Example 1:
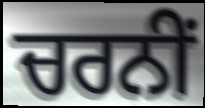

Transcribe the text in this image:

ਚਰਨੀਂ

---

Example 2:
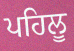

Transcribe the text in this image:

ਪਹਿਲੂ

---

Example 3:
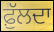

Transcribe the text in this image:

ਫ਼ੁੱਲਦਾ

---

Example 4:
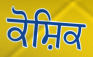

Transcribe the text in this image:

ਕੋਸ਼ਿਕ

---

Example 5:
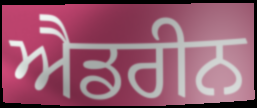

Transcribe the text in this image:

ਐਡਰੀਨ